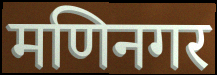
मणिनगर